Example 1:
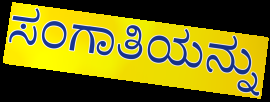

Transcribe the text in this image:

ಸಂಗಾತಿಯನ್ನು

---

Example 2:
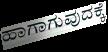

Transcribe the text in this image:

ಹಾಗಾಗುವುದಕ್ಕೆ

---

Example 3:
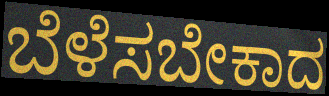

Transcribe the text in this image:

ಬೆಳೆಸಬೇಕಾದ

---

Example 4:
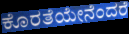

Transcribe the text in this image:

ಕೊರತೆಯೇನೆಂದರೆ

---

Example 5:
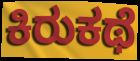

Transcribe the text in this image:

ಕಿರುಕಥೆ